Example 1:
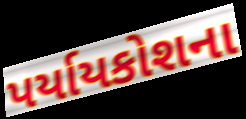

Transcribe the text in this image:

પર્યાયકોશના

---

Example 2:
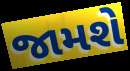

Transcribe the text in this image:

જામશે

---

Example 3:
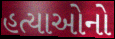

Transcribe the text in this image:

હત્યાઓનો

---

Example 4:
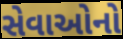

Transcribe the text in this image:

સેવાઓનો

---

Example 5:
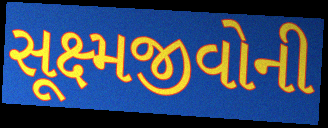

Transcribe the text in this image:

સૂક્ષ્મજીવોની